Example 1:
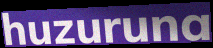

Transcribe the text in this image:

huzuruna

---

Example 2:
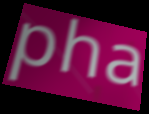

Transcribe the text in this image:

pha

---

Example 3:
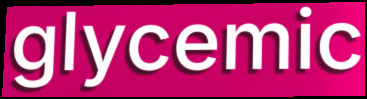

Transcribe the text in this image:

glycemic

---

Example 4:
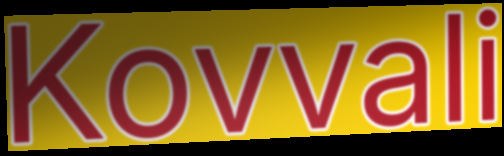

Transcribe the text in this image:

Kovvali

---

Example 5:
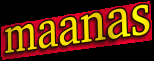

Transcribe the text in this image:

maanas